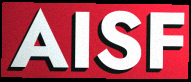
AISF